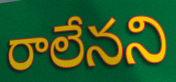
రాలేనని